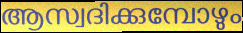
ആസ്വദിക്കുമ്പോഴും